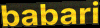
babari